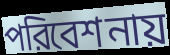
পরিবেশনায়